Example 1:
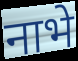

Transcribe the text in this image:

नाभे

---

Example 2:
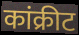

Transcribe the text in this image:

कांक्रीट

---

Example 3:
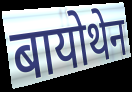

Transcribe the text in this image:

बायोथेन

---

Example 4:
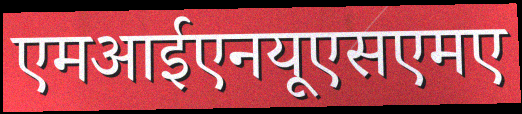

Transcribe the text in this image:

एमआईएनयूएसएमए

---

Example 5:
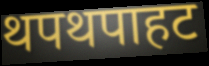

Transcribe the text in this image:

थपथपाहट